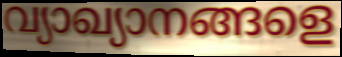
വ്യാഖ്യാനങ്ങളെ